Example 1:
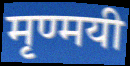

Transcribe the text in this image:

मृण्मयी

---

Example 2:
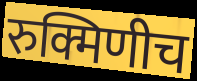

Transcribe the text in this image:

रुक्मिणीच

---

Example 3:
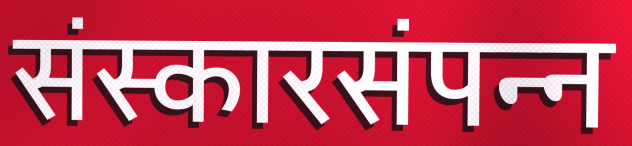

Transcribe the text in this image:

संस्कारसंपन्न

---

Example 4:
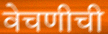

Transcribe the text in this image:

वेचणीची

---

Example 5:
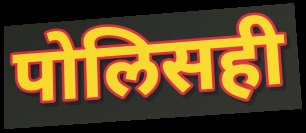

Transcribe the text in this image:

पोलिसही